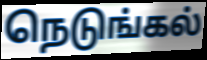
நெடுங்கல்